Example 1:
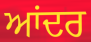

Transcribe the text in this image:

ਆਂਦਰ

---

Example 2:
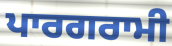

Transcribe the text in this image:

ਪਾਰਗਰਾਮੀ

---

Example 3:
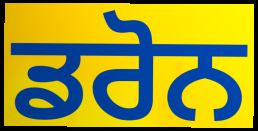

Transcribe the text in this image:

ਡਰੋਨ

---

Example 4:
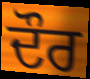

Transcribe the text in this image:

ਦੌਰ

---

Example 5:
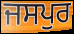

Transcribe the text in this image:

ਜਸਪੁਰ